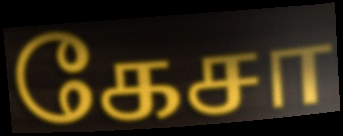
கேசா